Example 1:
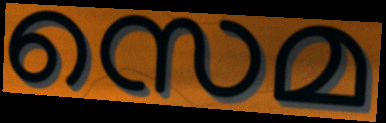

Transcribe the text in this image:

സെമ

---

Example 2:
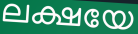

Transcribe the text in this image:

ലക്ഷയേ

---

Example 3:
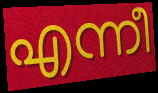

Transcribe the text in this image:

എന്നീ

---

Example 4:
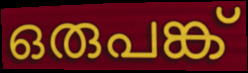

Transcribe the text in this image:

ഒരുപങ്ക്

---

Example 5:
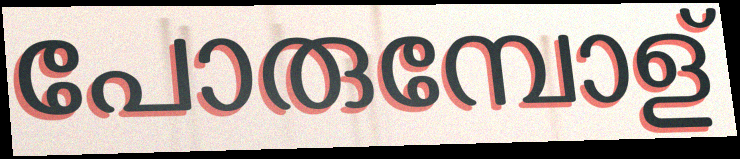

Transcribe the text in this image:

പോരുമ്പോള്